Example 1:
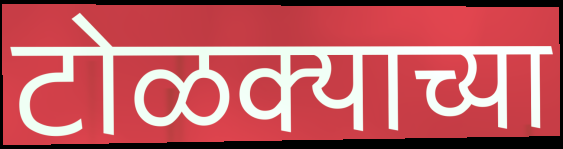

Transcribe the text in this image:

टोळक्याच्या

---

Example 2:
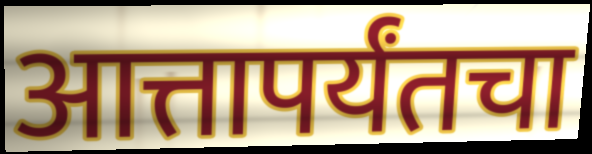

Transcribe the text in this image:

आत्तापर्यंतचा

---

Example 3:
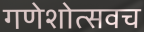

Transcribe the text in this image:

गणेशोत्सवच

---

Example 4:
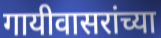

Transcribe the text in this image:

गायीवासरांच्या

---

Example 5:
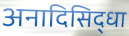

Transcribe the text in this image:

अनादिसिद्धा